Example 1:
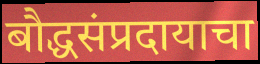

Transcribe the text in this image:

बौद्धसंप्रदायाचा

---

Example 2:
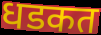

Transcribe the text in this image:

धडकत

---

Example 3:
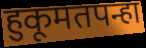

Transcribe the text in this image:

हुकूमतपन्हा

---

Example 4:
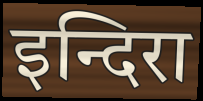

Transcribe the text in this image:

इन्दिरा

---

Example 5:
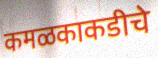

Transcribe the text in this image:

कमळकाकडीचे